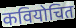
कवियोचित